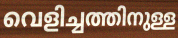
വെളിച്ചത്തിനുള്ള